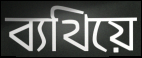
ব্যথিয়ে